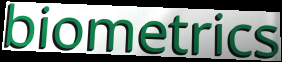
biometrics